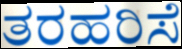
ತರಹರಿಸೆ